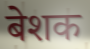
बेशक